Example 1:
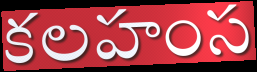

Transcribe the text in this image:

కలహంస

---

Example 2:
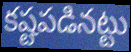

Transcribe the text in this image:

కష్టపడినట్టు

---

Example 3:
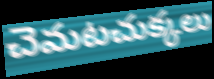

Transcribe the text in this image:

చెమటచుక్కలు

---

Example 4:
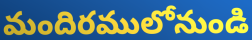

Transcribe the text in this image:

మందిరములోనుండి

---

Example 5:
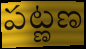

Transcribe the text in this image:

పట్ణణ